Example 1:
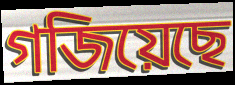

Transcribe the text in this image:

গজিয়েছে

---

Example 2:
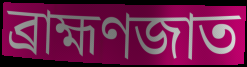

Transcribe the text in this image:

ব্রাহ্মণজাত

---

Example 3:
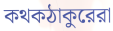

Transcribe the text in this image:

কথকঠাকুরেরা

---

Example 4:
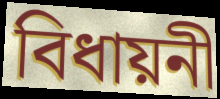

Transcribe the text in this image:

বিধায়নী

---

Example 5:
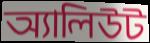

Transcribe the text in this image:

অ্যালিউট